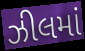
ઝીલમાં